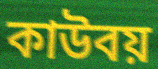
কাউবয়